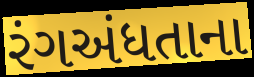
રંગઅંધતાના